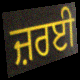
ਜ਼ਰਈ